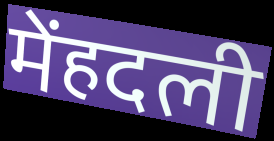
मेंहदली